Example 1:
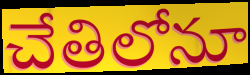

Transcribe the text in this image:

చేతిలోనూ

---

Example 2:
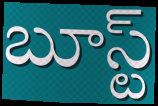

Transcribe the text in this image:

బూస్ట్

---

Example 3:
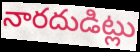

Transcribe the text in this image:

నారదుడిట్లు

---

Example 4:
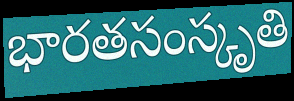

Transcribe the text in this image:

భారతసంస్కృతి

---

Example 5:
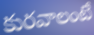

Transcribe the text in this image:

కురవాలంటే